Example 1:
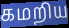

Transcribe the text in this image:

கமறிய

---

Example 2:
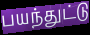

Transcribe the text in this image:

பயந்துட்டு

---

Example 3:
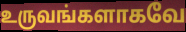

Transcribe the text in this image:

உருவங்களாகவே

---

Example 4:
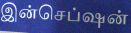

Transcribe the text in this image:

இன்செப்ஷன்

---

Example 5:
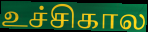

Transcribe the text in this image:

உச்சிகால